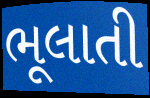
ભૂલાતી